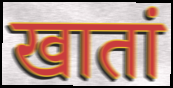
खातां